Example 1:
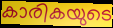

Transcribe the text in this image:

കാരികയുടെ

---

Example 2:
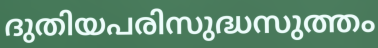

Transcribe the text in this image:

ദുതിയപരിസുദ്ധസുത്തം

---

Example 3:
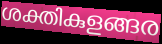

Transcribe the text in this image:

ശക്തികുളങ്ങര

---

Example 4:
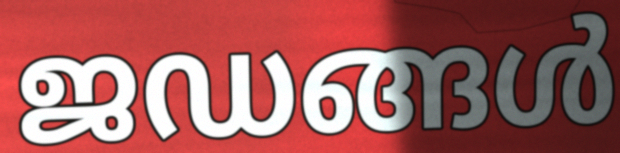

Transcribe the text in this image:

ജഡങ്ങൾ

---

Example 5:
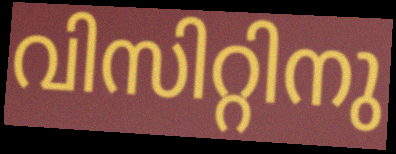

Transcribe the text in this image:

വിസിറ്റിനു